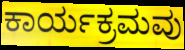
ಕಾರ್ಯಕ್ರಮವು